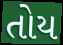
તોય